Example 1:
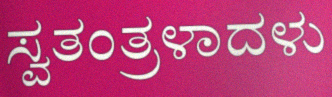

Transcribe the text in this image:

ಸ್ವತಂತ್ರಳಾದಳು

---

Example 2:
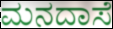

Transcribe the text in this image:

ಮನದಾಸೆ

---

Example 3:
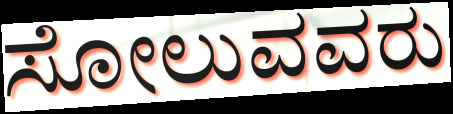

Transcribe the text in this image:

ಸೋಲುವವರು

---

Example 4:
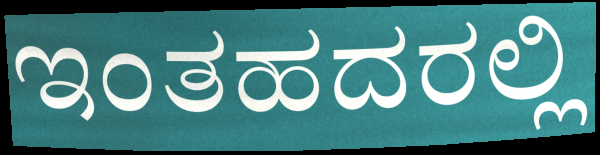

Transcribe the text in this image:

ಇಂತಹದರಲ್ಲಿ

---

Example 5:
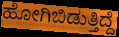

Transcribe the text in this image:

ಹೋಗಿಬಿಡುತ್ತಿದ್ದೆ